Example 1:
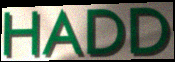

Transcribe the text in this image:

HADD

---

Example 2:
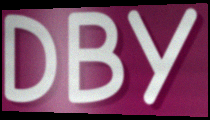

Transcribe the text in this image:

DBY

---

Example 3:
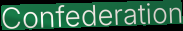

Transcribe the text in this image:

Confederation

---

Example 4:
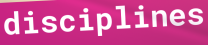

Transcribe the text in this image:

disciplines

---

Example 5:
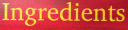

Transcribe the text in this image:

Ingredients